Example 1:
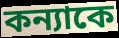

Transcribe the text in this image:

কন্যাকে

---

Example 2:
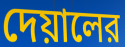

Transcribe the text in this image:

দেয়ালের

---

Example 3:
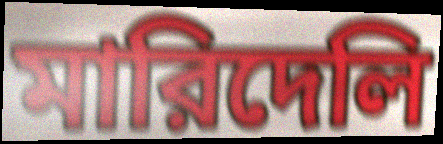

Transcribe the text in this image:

মারিদেলি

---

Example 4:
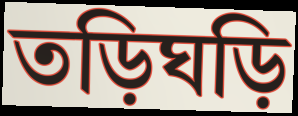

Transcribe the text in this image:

তড়িঘড়ি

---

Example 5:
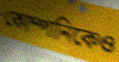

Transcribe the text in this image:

কোম্পানিকেও